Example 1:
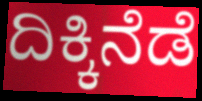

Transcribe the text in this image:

ದಿಕ್ಕಿನೆಡೆ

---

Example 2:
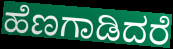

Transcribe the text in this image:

ಹೆಣಗಾಡಿದರೆ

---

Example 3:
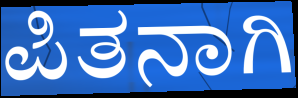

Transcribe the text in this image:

ಪಿತನಾಗಿ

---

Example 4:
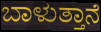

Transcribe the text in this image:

ಬಾಳುತ್ತಾನೆ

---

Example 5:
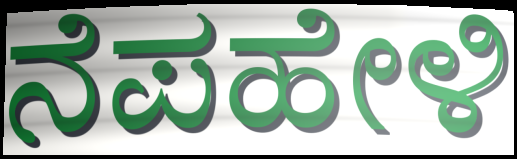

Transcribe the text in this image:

ನೆಪಹೇಳಿ